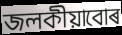
জলকীয়াবোৰ